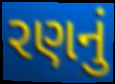
રણનું